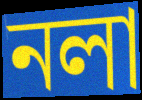
নলা